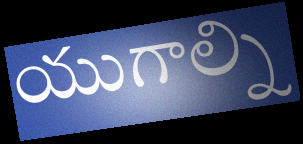
యుగాల్ని